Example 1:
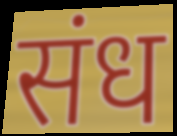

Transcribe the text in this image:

संध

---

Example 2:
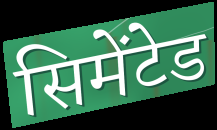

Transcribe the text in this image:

सिमेंटेड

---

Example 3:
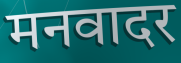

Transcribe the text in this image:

मनवादर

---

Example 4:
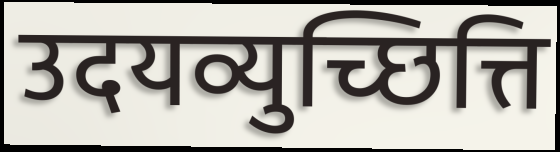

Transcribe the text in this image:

उदयव्युच्छित्ति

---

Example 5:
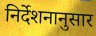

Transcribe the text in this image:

निर्देशनानुसार